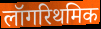
लॉगरिथमिक